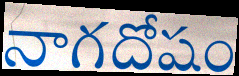
నాగదోషం